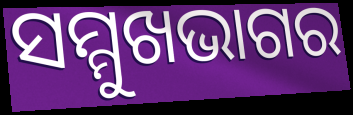
ସମ୍ମୁଖଭାଗର